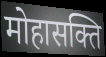
मोहासक्ति